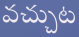
వచ్చుట